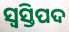
ସ୍ବସ୍ତିପଦ